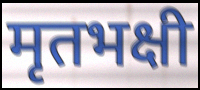
मृतभक्षी